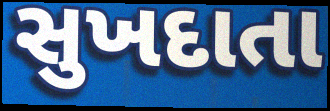
સુખદાતા